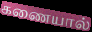
கணையால்